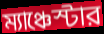
ম্যাঞ্চেস্টার